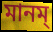
মানম্